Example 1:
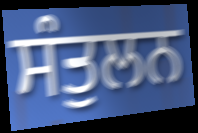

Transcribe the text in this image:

ਸੰਤੁਲਨ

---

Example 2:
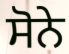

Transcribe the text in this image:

ਸੋਨੇ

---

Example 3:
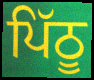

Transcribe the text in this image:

ਪਿੱਠੂ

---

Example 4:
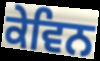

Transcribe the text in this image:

ਕੇਵਿਨ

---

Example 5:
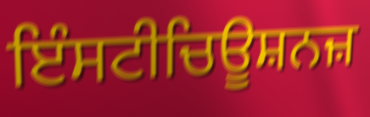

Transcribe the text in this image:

ਇੰਸਟੀਚਿਊਸ਼ਨਜ਼